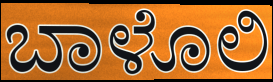
ಬಾಳೊಲಿ